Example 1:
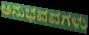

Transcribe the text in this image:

ಅನುಭವವಗಳು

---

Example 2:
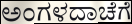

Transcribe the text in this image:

ಅಂಗಳದಾಚೆಗೆ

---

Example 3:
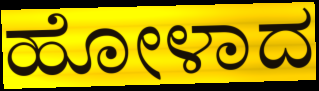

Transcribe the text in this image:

ಹೋಳಾದ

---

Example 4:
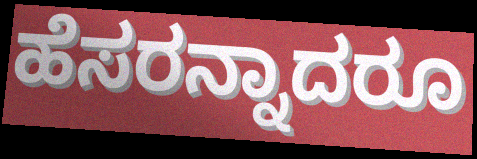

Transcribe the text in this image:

ಹೆಸರನ್ನಾದರೂ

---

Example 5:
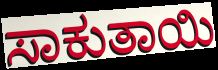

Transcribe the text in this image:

ಸಾಕುತಾಯಿ